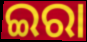
ଇରା